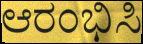
ಆರಂಭಿಸಿ